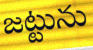
జట్టును